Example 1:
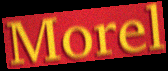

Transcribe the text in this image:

Morel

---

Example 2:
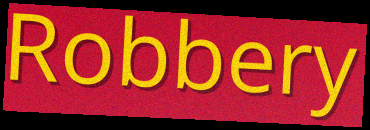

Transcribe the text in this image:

Robbery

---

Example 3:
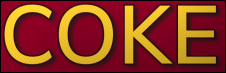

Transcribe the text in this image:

COKE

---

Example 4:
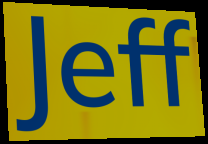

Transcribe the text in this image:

Jeff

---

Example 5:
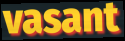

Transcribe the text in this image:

vasant